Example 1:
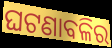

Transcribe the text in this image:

ଘଟଣାବଳିର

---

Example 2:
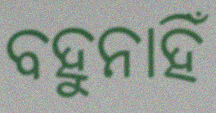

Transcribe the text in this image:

ବହୁନାହିଁ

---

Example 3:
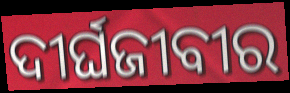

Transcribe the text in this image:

ଦୀର୍ଘଜୀବୀର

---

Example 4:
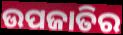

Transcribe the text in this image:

ଉପଜାତିର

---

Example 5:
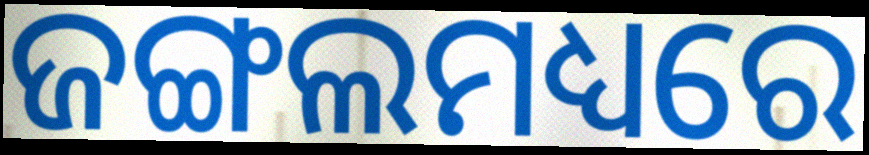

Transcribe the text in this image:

ଜଙ୍ଗଲମଧ୍ୟରେ